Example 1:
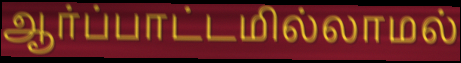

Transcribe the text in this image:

ஆர்ப்பாட்டமில்லாமல்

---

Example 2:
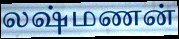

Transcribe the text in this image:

லஷ்மணன்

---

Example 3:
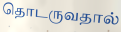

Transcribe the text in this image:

தொடருவதால்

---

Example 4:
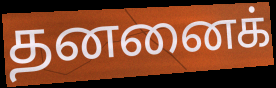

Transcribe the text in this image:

தனனைக்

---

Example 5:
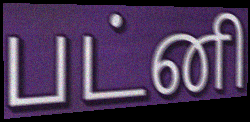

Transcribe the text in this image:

பட்னி